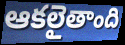
ఆకలైతాంది